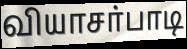
வியாசர்பாடி